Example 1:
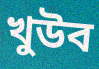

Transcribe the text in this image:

খুউব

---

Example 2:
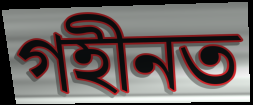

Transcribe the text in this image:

গহীনত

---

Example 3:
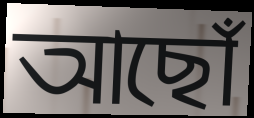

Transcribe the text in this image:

আছোঁ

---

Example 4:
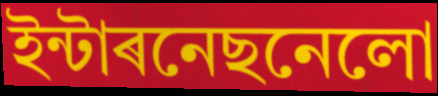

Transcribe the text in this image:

ইন্টাৰনেছনেলো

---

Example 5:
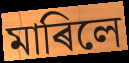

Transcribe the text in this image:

মাৰিলে